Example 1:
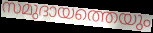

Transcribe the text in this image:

സമുദായത്തെയും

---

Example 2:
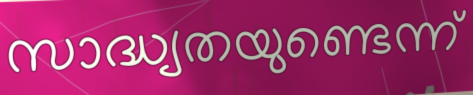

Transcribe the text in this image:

സാദ്ധ്യതയുണ്ടെന്ന്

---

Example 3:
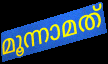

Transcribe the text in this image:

മൂന്നാമത്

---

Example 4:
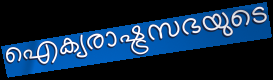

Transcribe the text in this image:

ഐക്യരാഷ്ട്രസഭയുടെ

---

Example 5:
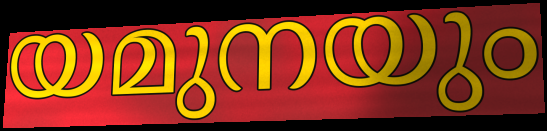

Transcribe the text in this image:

യമുനയും